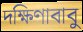
দক্ষিণাবাবু